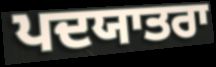
ਪਦਯਾਤਰਾ